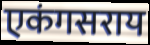
एकंगसराय